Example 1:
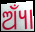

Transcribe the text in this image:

ଅ୍ୟାଁ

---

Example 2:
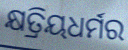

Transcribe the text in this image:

କ୍ଷତ୍ରିୟଧର୍ମର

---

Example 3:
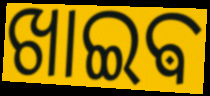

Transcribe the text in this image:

ଖାଇଵ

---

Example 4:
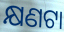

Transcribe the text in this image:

କ୍ଷଣଟା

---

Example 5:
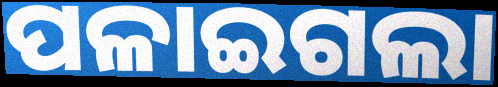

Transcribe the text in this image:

ପଳାଇଗଲା